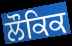
ਲੌਕਿਕ